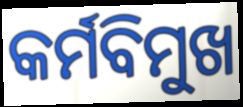
କର୍ମବିମୁଖ